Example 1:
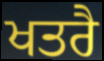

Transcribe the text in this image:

ਖਤਰੈ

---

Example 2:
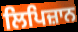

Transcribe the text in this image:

ਲਿਪਿਜ਼ਾਨ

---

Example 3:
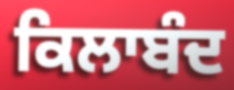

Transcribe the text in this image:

ਕਿਲਾਬੰਦ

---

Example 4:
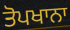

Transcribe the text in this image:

ਤੋਪਖਾਨਾ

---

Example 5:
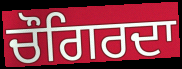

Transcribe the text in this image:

ਚੌਗਿਰਦਾ